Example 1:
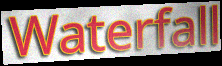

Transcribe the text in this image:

Waterfall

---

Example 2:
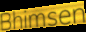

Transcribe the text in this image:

Bhimsen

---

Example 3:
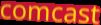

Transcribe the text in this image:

comcast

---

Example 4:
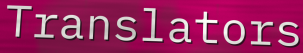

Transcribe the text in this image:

Translators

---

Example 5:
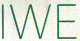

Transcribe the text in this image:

IWE